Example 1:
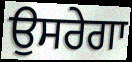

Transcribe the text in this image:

ਉਸਰੇਗਾ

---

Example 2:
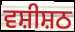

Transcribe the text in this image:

ਵਸ਼ੀਸ਼ਠ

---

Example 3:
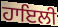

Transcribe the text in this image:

ਹਾਇਲੀ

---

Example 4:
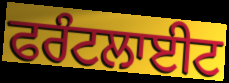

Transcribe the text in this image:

ਫਰੰਟਲਾਈਟ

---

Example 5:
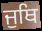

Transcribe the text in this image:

ਜੁਥਿ